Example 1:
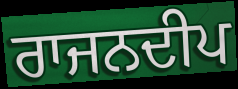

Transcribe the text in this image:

ਰਾਜਨਦੀਪ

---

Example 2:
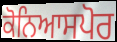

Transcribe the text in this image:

ਕੋਨਿਆਸਪੋਰ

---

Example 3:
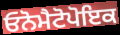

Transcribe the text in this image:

ਓਨੋਮੈਟੋਪੋਇਕ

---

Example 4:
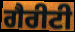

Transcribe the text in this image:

ਗੈਰੀਟੀ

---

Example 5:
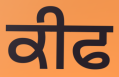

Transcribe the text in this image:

ਕੀਫ